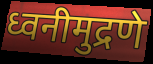
ध्वनीमुद्रणे